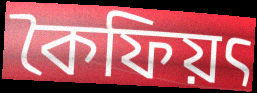
কৈফিয়ৎ